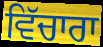
ਵਿੱਚਾਰਾ